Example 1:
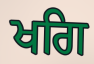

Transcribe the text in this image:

ਖਗਿ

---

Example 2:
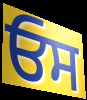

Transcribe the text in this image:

ਓਸ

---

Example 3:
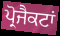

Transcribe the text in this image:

ਪ੍ਰੋਜੈਕਟਾਂ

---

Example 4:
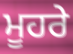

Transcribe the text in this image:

ਮੂਹਰੇ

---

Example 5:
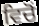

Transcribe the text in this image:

ਵਿਚੋਂ